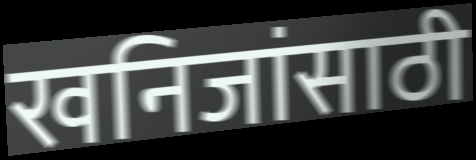
खनिजांसाठी